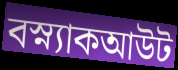
বস্ন্যাকআউট